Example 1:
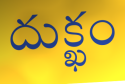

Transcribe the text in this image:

దుక్ఖం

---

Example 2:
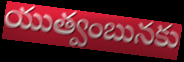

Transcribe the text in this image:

యుత్వంబునకు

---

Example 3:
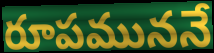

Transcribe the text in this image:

రూపముననే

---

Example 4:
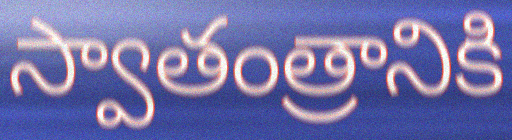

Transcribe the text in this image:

స్వాతంత్రానికి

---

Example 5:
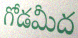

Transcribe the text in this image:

గోడమీద